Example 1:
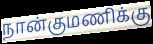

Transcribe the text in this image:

நான்குமணிக்கு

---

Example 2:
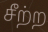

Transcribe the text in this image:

சீற்ற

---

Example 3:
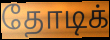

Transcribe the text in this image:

தோடிக்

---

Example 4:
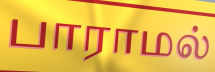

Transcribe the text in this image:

பாராமல்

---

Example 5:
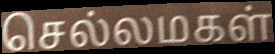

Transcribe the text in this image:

செல்லமகள்